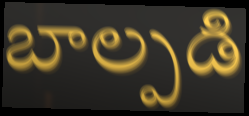
బాల్పడి